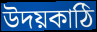
উদয়কাঠি